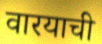
वारयाची